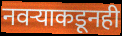
नवऱ्याकडूनही